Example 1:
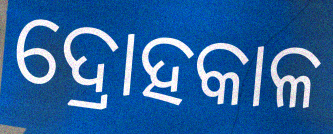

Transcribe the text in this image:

ଦ୍ରୋହକାଳ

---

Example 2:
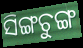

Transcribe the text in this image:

ସିଙ୍ଗଚୁଙ୍ଗ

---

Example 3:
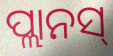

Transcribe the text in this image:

ପ୍ଲାନସ୍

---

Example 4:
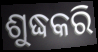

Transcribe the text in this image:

ଶୁଦ୍ଧକରି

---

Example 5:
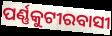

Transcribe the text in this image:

ପର୍ଣ୍ଣକୁଟୀରବାସୀ